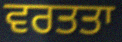
ਵਰਤਤਾ